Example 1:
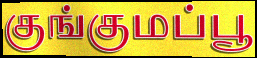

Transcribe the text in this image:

குங்குமப்பூ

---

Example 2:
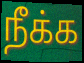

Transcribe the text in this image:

நீக்க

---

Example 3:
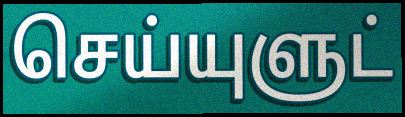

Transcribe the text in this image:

செய்யுளுட்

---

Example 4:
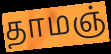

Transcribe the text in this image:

தாமஞ்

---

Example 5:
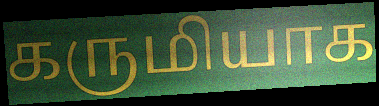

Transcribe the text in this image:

கருமியாக